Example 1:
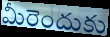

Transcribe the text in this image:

మీరెందుకు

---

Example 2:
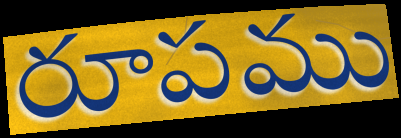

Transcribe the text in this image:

రూపము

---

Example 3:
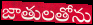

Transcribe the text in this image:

జాతులతోను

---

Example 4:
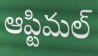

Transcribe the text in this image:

ఆప్టిమల్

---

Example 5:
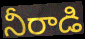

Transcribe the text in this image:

నీరాడి